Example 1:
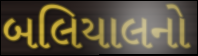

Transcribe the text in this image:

બલિયાલનો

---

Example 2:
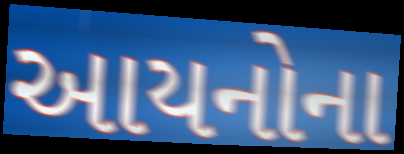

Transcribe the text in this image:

આયનોના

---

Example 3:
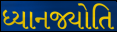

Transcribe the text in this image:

ધ્યાનજ્યોતિ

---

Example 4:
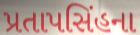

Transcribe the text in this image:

પ્રતાપસિંહના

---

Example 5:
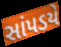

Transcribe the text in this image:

સાંપડયે